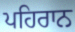
ਪਹਿਰਾਨ